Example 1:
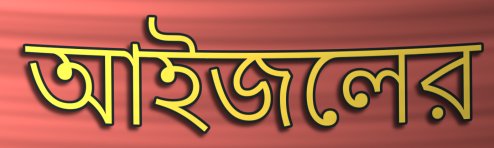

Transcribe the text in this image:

আইজলের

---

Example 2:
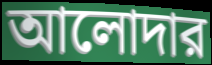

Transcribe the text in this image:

আলোদার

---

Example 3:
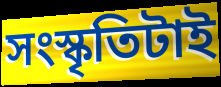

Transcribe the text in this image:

সংস্কৃতিটাই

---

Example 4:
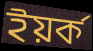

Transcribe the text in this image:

ইয়র্ক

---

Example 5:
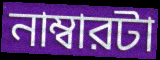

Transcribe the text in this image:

নাম্বারটা